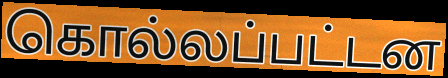
கொல்லப்பட்டன